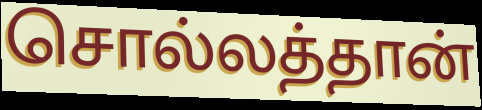
சொல்லத்தான்